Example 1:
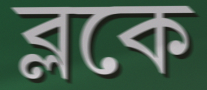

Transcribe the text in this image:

ব্লকে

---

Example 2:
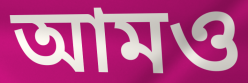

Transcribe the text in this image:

আমও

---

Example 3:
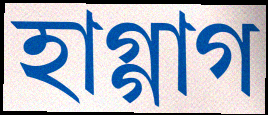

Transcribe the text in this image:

হাগ্গাগ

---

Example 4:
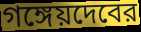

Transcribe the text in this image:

গঙ্গেয়দেবের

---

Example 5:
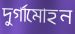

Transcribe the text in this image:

দুর্গামোহন